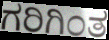
ಗರಿಗಿಂತ